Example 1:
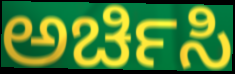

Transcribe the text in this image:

ಅರ್ಚಿಸಿ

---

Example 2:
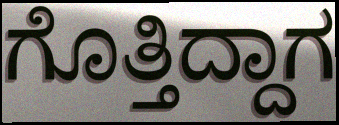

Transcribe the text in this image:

ಗೊತ್ತಿದ್ದಾಗ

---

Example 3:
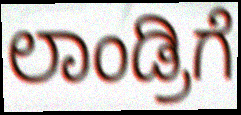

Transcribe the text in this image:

ಲಾಂಡ್ರಿಗೆ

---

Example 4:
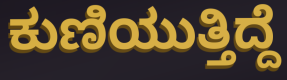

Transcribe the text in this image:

ಕುಣಿಯುತ್ತಿದ್ದೆ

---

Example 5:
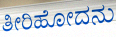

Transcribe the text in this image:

ತೀರಿಹೋದನು